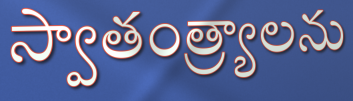
స్వాతంత్ర్యాలను